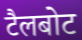
टैलबोट